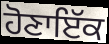
ਹੋਣਾਇੱਕ